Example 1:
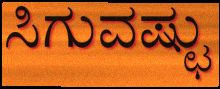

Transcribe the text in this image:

ಸಿಗುವಷ್ಟು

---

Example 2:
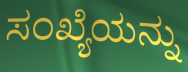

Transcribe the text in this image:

ಸಂಖ್ಯೆಯನ್ನು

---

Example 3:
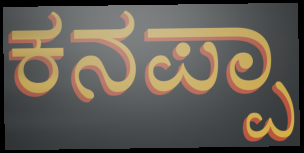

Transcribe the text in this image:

ಕನಪ್ಪಾ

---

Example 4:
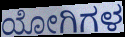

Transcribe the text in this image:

ಯೋಗಿಗಳ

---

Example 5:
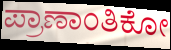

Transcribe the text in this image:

ಪ್ರಾಣಾಂತಿಕೋ